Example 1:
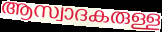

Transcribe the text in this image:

ആസ്വാദകരുള്ള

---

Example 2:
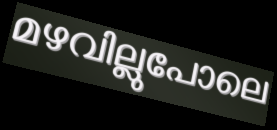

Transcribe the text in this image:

മഴവില്ലുപോലെ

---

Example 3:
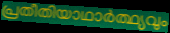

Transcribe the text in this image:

പ്രതീതിയാഥാർത്ഥ്യവും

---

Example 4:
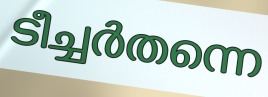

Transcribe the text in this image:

ടീച്ചർതന്നെ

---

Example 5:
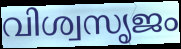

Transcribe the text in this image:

വിശ്വസൃജം